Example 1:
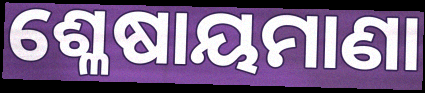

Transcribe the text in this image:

ଶ୍ଳେଷାୟମାଣା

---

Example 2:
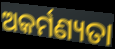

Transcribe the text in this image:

ଅକର୍ମଣ୍ୟତା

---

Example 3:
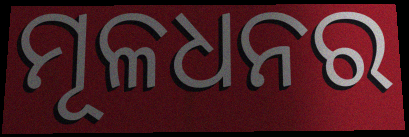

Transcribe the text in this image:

ମୂଳଧନର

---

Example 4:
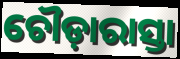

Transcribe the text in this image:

ଚୌଡ଼ାରାସ୍ତା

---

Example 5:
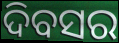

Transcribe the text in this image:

ଦିବସର